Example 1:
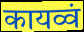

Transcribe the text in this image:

कायव्वं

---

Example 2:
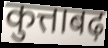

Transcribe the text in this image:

कुत्ताबढ़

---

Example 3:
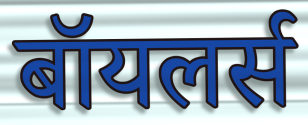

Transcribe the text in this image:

बॉयलर्स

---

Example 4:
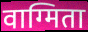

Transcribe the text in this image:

वाग्मिता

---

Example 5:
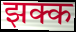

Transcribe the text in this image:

झक्क